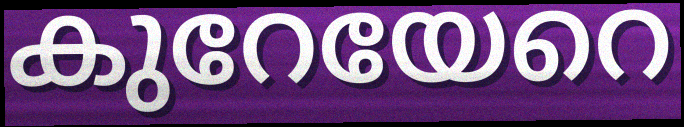
കുറേയേറെ